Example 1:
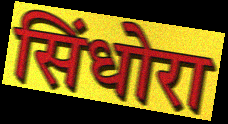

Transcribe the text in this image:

सिंधोरा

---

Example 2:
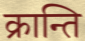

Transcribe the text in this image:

क्रान्ति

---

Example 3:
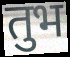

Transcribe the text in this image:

तुभ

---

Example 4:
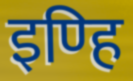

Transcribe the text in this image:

इण्हि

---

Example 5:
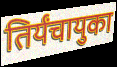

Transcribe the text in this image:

तिर्यंचायुका